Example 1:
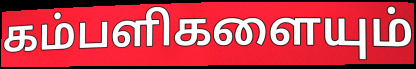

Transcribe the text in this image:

கம்பளிகளையும்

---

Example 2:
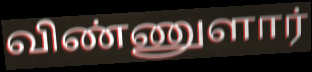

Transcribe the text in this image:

விண்ணுளார்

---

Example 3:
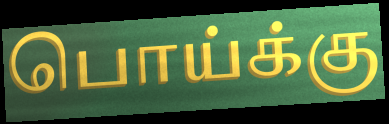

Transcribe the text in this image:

பொய்க்கு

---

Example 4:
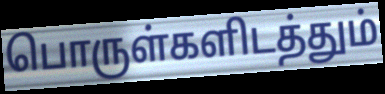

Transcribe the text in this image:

பொருள்களிடத்தும்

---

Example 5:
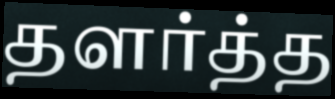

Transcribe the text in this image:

தளர்த்த